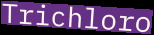
Trichloro